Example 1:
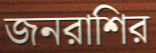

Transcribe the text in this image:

জনরাশির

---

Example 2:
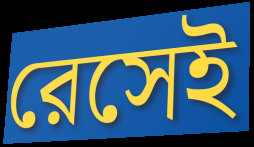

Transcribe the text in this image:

রেসেই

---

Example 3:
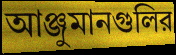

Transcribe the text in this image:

আঞ্জুমানগুলির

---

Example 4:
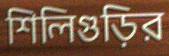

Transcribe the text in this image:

শিলিগুড়ির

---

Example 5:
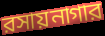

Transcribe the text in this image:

রসায়নাগার